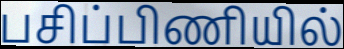
பசிப்பிணியில்